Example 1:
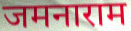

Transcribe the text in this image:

जमनाराम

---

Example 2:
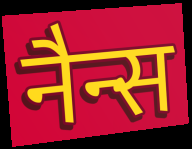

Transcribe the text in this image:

नैन्स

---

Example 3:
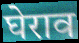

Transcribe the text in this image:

घेराव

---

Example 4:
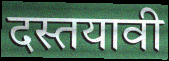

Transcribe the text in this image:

दस्तयावी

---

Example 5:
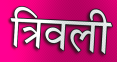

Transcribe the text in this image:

त्रिवली